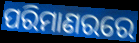
ପରିମାଣରରେ